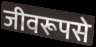
जीवरूपसे